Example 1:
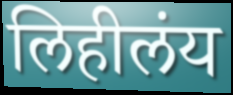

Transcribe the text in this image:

लिहीलंय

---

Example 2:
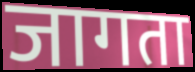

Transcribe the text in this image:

जागता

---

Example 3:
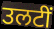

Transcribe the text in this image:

उलटीं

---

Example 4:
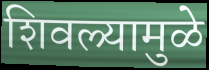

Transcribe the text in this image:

शिवल्यामुळे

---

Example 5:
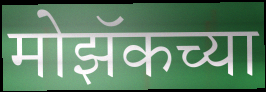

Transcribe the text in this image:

मोझॅकच्या